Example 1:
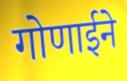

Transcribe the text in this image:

गोणाईने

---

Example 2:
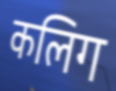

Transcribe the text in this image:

कलिग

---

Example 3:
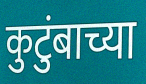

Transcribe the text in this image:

कुटुंबाच्या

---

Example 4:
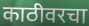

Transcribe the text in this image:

काठीवरचा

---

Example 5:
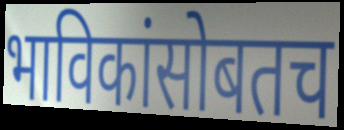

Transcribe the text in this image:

भाविकांसोबतच